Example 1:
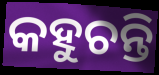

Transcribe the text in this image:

କହୁଚନ୍ତି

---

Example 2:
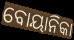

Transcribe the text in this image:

ବୋୟାନିକା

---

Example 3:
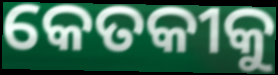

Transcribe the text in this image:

କେତକୀକୁ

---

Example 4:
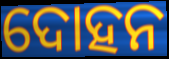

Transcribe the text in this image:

ଦୋହନ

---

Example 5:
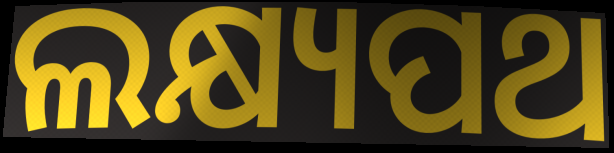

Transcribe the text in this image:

ଲକ୍ଷ୍ୟପଥ